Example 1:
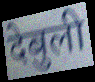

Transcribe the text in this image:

देबुली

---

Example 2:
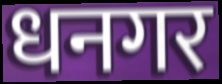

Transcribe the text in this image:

धनगर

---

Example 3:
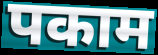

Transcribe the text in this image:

पकाम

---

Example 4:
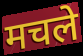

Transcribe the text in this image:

मचले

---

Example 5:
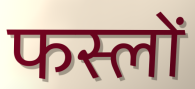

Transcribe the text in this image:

फस्लों